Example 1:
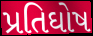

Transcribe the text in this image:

પ્રતિઘોષ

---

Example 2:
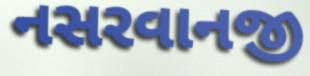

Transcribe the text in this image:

નસરવાનજી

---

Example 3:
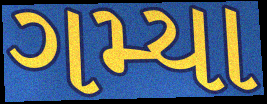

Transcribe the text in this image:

ગમ્યા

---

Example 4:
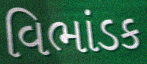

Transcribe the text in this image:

વિભાંડક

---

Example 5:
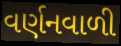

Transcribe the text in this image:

વર્ણનવાળી